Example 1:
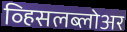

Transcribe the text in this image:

व्हिसलब्लोअर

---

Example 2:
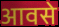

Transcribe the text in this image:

आवसे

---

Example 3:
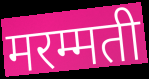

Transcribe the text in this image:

मरम्मती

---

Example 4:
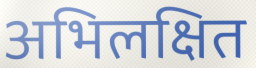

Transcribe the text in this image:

अभिलक्षित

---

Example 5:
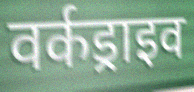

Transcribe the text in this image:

वर्कड्राइव